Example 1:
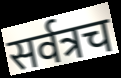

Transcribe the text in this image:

सर्वत्रच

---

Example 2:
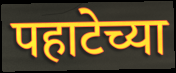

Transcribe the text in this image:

पहाटेच्या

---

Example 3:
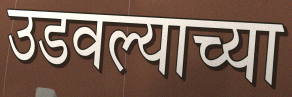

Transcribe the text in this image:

उडवल्याच्या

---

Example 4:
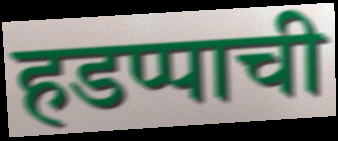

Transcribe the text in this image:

हडप्पाची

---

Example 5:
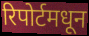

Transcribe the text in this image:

रिपोर्टमधून